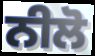
ਨੀਲੋ